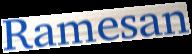
Ramesan